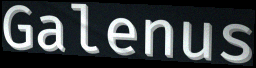
Galenus